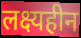
लक्ष्यहीन